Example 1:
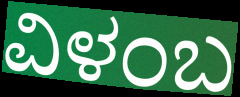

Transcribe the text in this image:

ವಿಳಂಬ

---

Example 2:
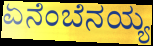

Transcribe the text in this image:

ಏನೆಂಬೆನಯ್ಯ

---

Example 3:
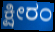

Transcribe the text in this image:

ಕ್ಷೀರಂ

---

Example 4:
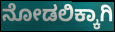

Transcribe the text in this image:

ನೋಡಲಿಕ್ಕಾಗಿ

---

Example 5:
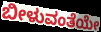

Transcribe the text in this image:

ಬೀಳುವಂತೆಯೇ